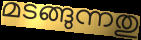
മടങ്ങുന്നതു